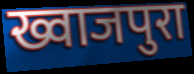
ख्वाजपुरा